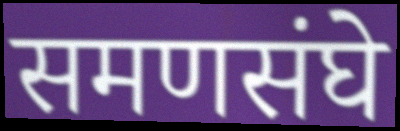
समणसंघे